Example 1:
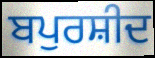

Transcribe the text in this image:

ਬਪੁਰਸ਼ੀਦ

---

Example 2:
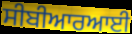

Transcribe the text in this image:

ਸੀਬੀਆਰਆਈ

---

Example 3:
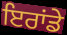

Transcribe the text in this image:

ਇਰਾਂਡੇ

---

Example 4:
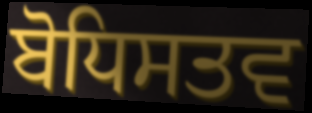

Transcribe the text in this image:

ਬੋਧਿਸਤਵ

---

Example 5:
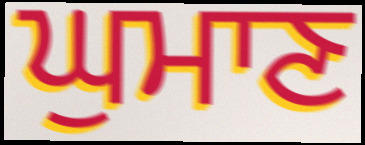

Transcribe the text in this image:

ਘੁਮਾਣ